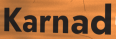
Karnad